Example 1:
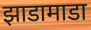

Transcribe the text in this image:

झाडामाडा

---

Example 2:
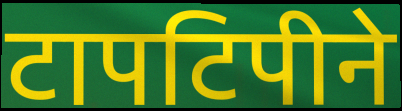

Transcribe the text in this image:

टापटिपीने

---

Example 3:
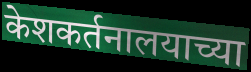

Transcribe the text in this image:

केशकर्तनालयाच्या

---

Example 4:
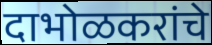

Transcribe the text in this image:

दाभोळकरांचे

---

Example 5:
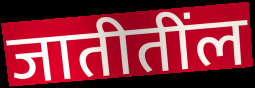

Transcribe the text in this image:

जातीतींल